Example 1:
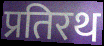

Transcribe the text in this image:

प्रतिरथ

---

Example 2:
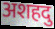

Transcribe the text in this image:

अशहदु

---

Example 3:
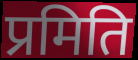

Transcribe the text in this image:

प्रमिति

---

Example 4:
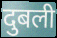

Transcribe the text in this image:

दुबली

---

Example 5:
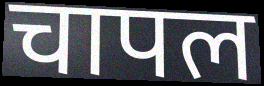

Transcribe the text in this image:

चापल